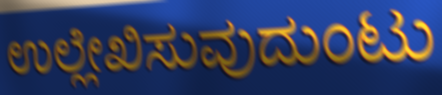
ಉಲ್ಲೇಖಿಸುವುದುಂಟು